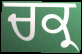
ਚਕ੍ਰ